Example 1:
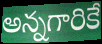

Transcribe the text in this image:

అన్నగారికే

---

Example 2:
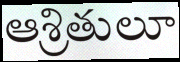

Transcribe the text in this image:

ఆశ్రితులూ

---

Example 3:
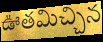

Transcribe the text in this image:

ఊతమిచ్చిన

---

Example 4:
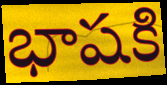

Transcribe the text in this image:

భాషకి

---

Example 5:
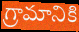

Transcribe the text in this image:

గ్రామానికి